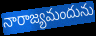
నారాజ్యమందును